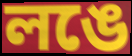
লঙে